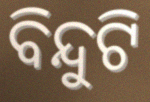
ବିନ୍ଦୁଟି